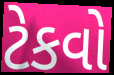
ટેકવો